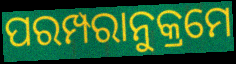
ପରମ୍ପରାନୁକ୍ରମେ